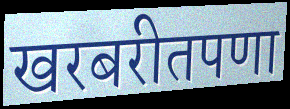
खरबरीतपणा